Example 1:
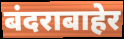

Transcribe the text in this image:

बंदराबाहेर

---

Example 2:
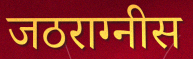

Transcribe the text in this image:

जठराग्नीस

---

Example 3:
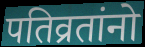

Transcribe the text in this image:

पतिव्रतांनो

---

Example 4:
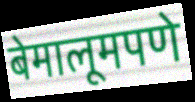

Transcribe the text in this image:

बेमालूमपणे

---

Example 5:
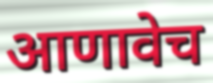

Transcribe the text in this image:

आणावेच